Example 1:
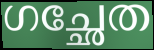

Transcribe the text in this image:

ഗച്ഛേത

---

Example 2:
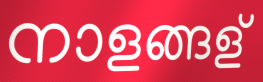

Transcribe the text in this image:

നാളങ്ങള്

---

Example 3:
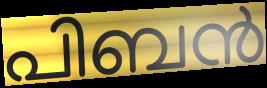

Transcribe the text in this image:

പിബൻ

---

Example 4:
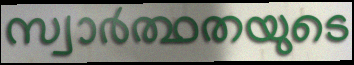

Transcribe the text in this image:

സ്വാർത്ഥതയുടെ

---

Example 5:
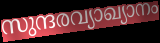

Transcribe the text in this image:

സുന്ദരവ്യാഖ്യാനം